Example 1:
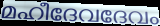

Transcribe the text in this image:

മഹീദേവദേവം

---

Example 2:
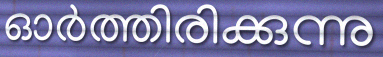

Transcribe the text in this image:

ഓർത്തിരിക്കുന്നു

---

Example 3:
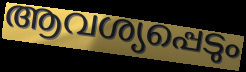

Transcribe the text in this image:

ആവശ്യപ്പെടും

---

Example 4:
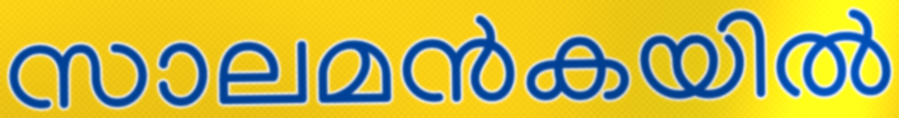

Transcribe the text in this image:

സാലമൻകയിൽ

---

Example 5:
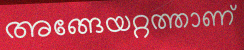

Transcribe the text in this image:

അങ്ങേയറ്റത്താണ്